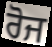
ਰੋਜ